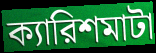
ক্যারিশমাটা